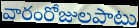
వారంరోజులపాటు